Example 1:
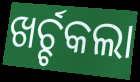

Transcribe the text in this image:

ଖର୍ଚ୍ଚକଲା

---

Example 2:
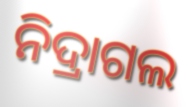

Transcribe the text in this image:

ନିଦ୍ରାଗଲ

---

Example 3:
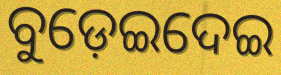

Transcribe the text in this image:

ବୁଡ଼େଇଦେଇ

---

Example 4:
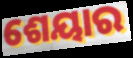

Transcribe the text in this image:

ଶେୟାର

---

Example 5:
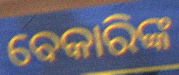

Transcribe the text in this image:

ବେକାରିଙ୍କ